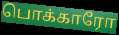
பொக்காரோ